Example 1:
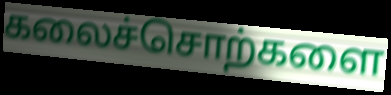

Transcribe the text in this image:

கலைச்சொற்களை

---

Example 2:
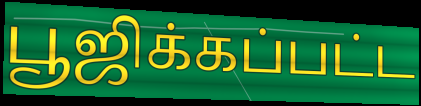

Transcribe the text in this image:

பூஜிக்கப்பட்ட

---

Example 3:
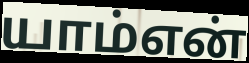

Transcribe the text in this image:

யாம்என்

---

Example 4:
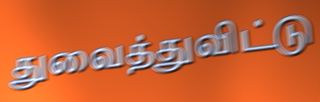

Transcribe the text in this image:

துவைத்துவிட்டு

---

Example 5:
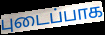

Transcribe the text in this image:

புடைப்பாக